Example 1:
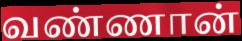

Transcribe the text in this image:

வண்ணான்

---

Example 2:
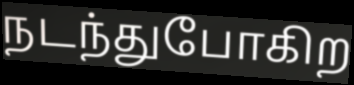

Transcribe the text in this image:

நடந்துபோகிற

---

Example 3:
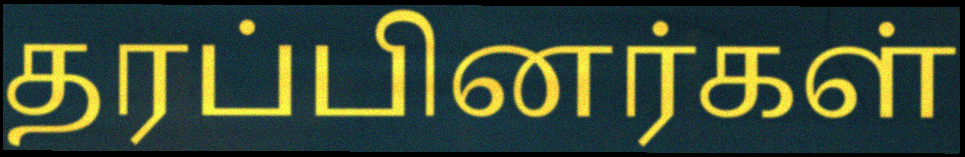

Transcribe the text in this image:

தரப்பினர்கள்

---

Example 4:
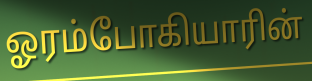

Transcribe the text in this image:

ஓரம்போகியாரின்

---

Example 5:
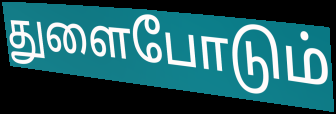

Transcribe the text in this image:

துளைபோடும்